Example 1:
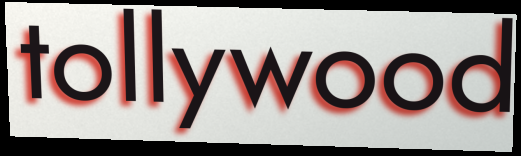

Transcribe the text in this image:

tollywood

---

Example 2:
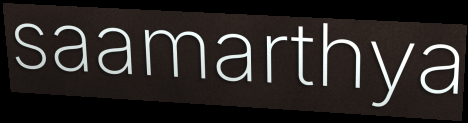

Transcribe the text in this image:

saamarthya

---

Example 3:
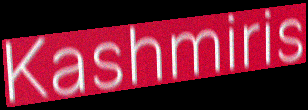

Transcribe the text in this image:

Kashmiris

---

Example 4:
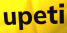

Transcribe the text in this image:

upeti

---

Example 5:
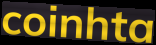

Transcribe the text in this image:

coinhta